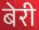
बेरी